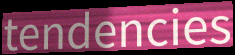
tendencies